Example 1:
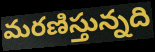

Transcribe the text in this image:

మరణిస్తున్నది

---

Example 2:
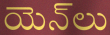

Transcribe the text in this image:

యెన్‌లు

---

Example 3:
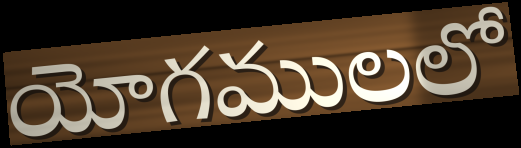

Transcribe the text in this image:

యోగములలో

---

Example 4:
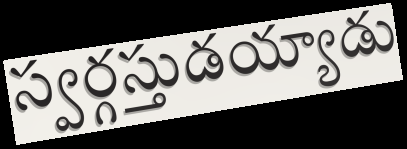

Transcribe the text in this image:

స్వర్గస్తుడయ్యాడు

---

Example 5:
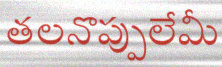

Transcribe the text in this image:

తలనొప్పులేమీ